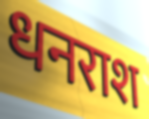
धनराश